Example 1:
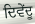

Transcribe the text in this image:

ਦਿਵੇਂਦੂ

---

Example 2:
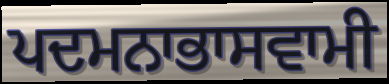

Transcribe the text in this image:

ਪਦਮਨਾਭਾਸਵਾਮੀ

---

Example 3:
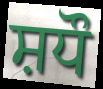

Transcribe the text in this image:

ਸ਼ਧੌ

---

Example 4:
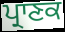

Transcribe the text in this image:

ਪ੍ਰਾਣਕ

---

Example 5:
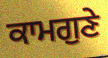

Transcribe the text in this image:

ਕਾਮਗੁਣੇ